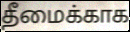
தீமைக்காக